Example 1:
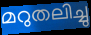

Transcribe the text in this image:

മറുതലിച്ചു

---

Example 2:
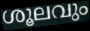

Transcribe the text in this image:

ശൂലവും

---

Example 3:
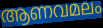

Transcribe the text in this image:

ആണവമലം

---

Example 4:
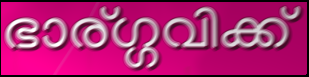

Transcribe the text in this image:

ഭാര്ഗ്ഗവിക്ക്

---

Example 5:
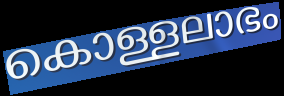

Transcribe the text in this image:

കൊള്ളലാഭം